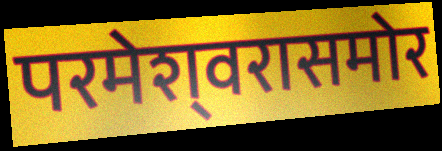
परमेश्वरासमोर